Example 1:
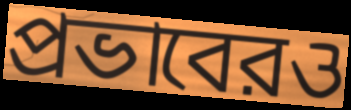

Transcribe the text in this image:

প্রভাবেরও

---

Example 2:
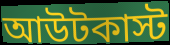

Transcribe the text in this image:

আউটকাস্ট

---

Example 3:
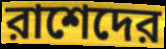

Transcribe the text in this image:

রাশেদের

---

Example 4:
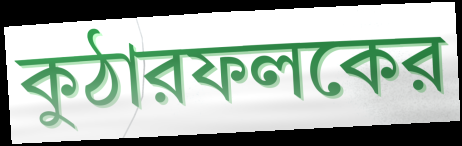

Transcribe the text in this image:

কুঠারফলকের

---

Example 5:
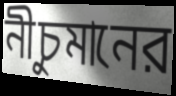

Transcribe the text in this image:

নীচুমানের